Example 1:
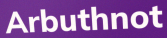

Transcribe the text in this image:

Arbuthnot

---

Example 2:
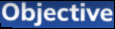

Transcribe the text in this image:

Objective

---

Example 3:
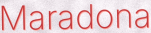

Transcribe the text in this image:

Maradona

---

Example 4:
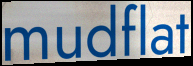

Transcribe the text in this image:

mudflat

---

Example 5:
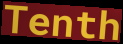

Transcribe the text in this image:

Tenth